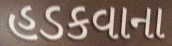
હડકવાના